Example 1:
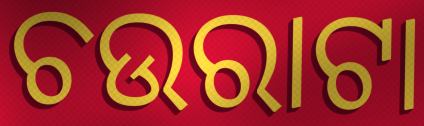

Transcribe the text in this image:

ଚଉରାଟା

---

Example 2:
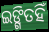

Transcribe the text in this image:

ଇଙ୍ଗିତହିଁ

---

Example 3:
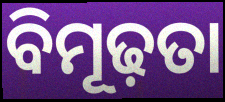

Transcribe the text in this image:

ବିମୂଢ଼ତା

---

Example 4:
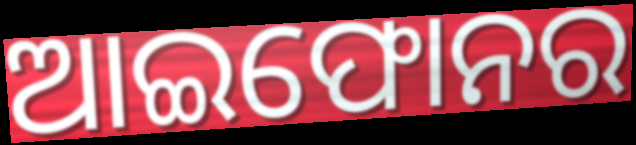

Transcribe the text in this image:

ଆଇଫୋନର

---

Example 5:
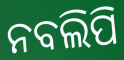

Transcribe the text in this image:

ନବଲିପି